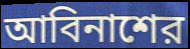
আবিনাশের